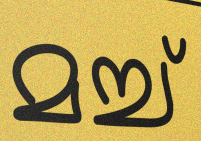
മച്ച്